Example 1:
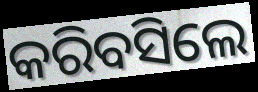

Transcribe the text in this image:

କରିବସିଲେ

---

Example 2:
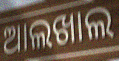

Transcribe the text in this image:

ଆଲଖାଲ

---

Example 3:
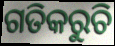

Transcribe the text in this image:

ଗତିକରୁଚି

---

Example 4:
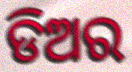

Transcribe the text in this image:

ଡିଅର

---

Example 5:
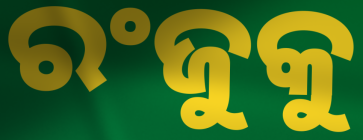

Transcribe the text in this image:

ରଂଜୁକୁ